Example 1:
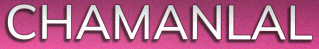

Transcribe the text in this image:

CHAMANLAL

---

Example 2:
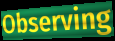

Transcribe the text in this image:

Observing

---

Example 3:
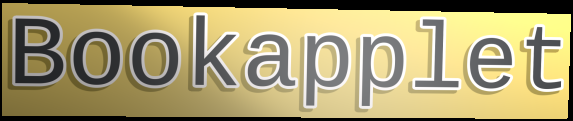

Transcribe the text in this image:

Bookapplet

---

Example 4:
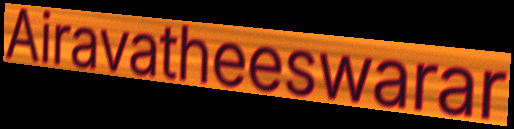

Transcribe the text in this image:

Airavatheeswarar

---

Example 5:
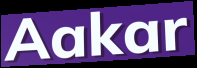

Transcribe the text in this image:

Aakar